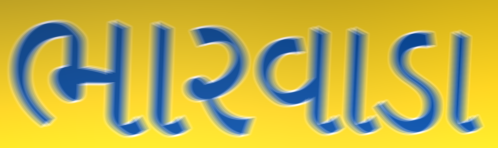
ભારવાડા